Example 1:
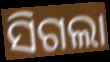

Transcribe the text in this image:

ସିଗଲା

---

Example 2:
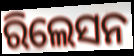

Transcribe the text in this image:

ରିଲେସନ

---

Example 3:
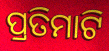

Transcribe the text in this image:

ପ୍ରତିମାଟି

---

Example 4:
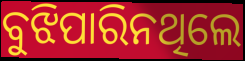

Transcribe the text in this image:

ବୁଝିପାରିନଥିଲେ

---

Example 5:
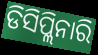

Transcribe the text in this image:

ଡିସିପ୍ଲିନାରି